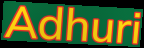
Adhuri